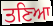
ਤਣਿਆ